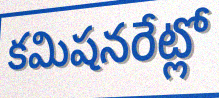
కమిషనరేట్లో